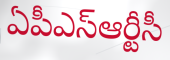
ఏపీఎస్ఆర్టీసీ